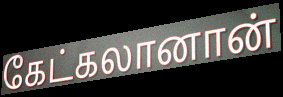
கேட்கலானான்